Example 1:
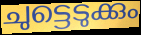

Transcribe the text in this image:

ചുട്ടെടുക്കും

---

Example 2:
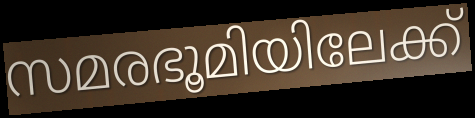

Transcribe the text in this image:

സമരഭൂമിയിലേക്ക്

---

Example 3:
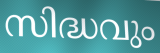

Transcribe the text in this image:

സിദ്ധവും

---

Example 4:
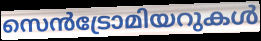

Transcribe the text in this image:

സെൻട്രോമിയറുകൾ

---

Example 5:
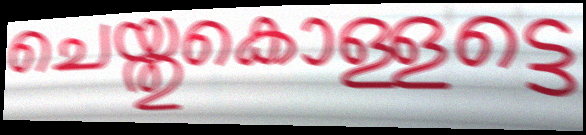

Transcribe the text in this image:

ചെയ്തുകൊള്ളട്ടെ